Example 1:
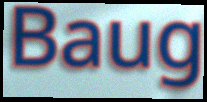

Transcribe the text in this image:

Baug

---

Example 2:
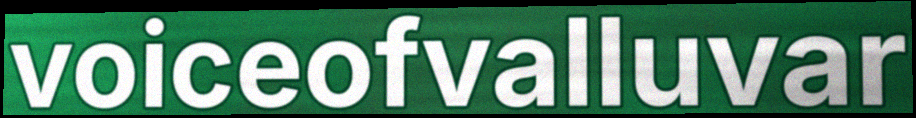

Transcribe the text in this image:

voiceofvalluvar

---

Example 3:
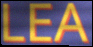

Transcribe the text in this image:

LEA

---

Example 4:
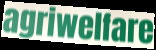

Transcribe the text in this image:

agriwelfare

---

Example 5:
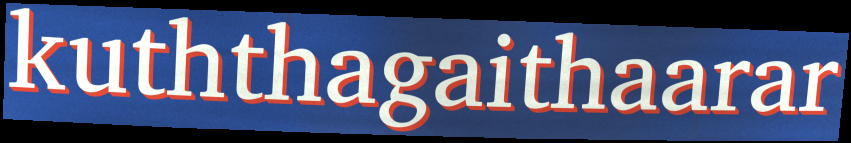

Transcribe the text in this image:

kuththagaithaarar